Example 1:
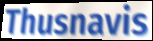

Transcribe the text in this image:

Thusnavis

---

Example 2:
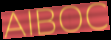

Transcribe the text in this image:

AIBOC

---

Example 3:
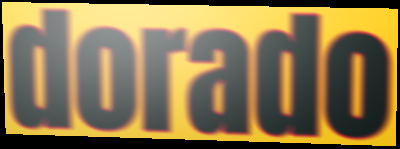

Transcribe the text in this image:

dorado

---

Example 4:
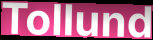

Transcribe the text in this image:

Tollund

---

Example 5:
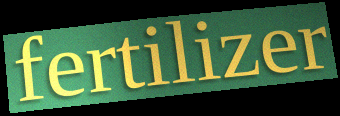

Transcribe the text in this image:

fertilizer